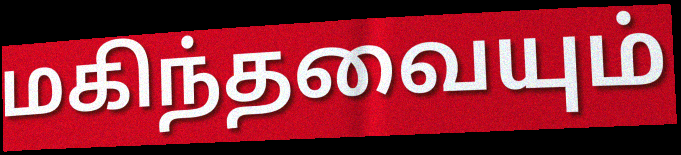
மகிந்தவையும்